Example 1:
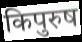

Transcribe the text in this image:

किपुरुष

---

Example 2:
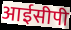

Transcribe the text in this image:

आईसीपी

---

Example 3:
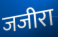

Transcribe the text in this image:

जजीरा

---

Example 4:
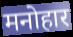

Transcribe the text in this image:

मनोहार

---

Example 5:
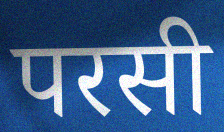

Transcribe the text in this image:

परसी